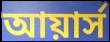
আয়ার্স